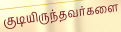
குடியிருந்தவர்களை